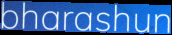
bharashun